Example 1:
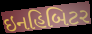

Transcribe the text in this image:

ઇનહિબિટર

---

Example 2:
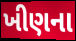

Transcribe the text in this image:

ખીણના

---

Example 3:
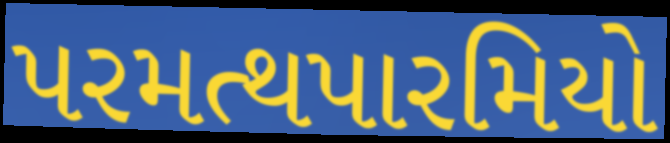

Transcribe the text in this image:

પરમત્થપારમિયો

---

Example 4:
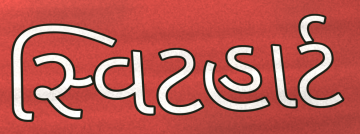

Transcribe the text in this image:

સ્વિટહાર્ટ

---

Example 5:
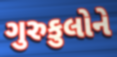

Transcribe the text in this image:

ગુરુકુલોને